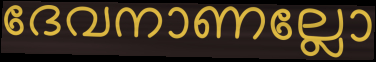
ദേവനാണല്ലോ